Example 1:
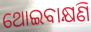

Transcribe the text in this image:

ଥୋଇବାକ୍ଷଣି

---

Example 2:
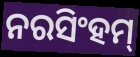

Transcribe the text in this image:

ନରସିଂହମ୍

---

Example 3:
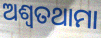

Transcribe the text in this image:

ଅଶ୍ୱତଥାମା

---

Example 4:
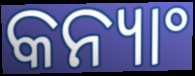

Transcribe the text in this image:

କନ୍ୟାଂ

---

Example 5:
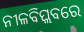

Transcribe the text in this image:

ନୀଳବିପ୍ଲବରେ